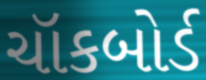
ચૉકબોર્ડ